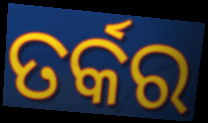
ତର୍କର